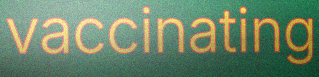
vaccinating